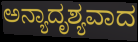
ಅನ್ಯಾದೃಶ್ಯವಾದ